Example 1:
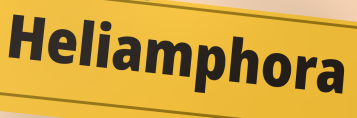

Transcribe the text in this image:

Heliamphora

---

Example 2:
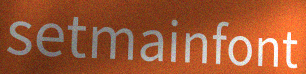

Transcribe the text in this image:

setmainfont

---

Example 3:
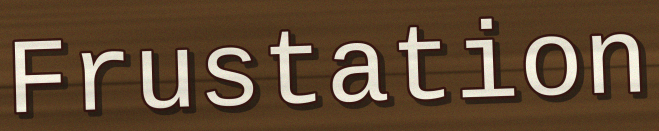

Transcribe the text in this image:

Frustation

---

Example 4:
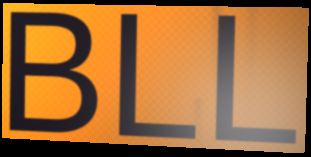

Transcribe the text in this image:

BLL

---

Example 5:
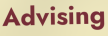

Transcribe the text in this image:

Advising